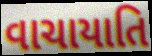
વાચાયાતિ